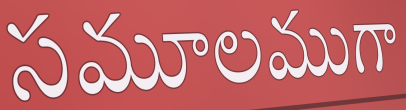
సమూలముగా